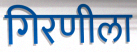
गिरणीला